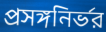
প্রসঙ্গনির্ভর